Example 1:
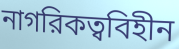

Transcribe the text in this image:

নাগরিকত্ববিহীন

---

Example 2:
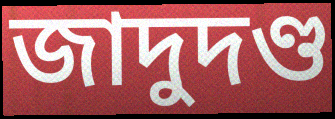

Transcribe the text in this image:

জাদুদণ্ড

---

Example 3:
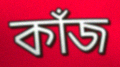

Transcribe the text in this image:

কাঁজ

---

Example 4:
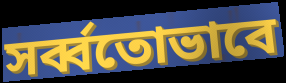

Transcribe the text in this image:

সর্ব্বতোভাবে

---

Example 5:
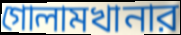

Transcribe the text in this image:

গোলামখানার